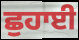
ਛੁਹਾਈ